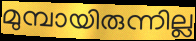
മുമ്പായിരുന്നില്ല